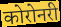
कोरोनरी